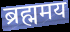
ब्रह्ममय